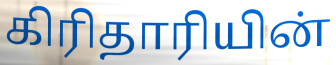
கிரிதாரியின்